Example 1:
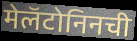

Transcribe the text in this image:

मेलॅटोनिनची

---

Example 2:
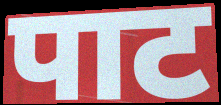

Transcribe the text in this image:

पाट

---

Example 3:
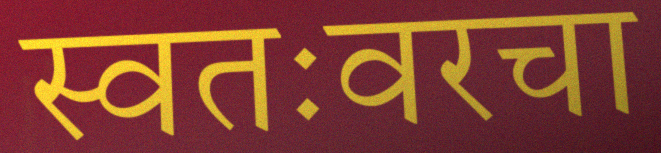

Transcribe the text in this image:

स्वतःवरचा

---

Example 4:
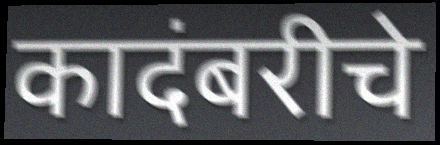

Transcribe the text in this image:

कादंबरीचे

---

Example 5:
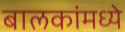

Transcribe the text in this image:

बालकांमध्ये